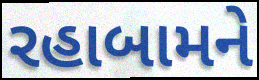
રહાબામને